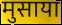
मुसाया